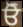
ਓੋ